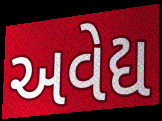
અવેદ્ય